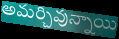
అమర్చివున్నాయి